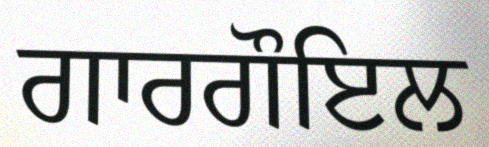
ਗਾਰਗੌਇਲ